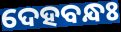
ଦେହବନ୍ଧଃ